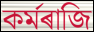
কৰ্মৰাজি